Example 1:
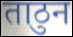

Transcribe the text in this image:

ताठुन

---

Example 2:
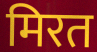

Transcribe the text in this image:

मिरत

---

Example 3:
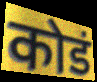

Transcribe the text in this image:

कोडं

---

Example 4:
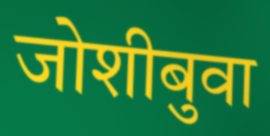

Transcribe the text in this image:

जोशीबुवा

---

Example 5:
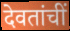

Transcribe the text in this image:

देवतांचीं